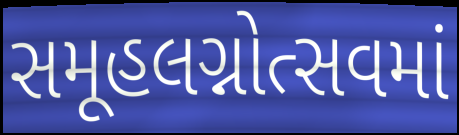
સમૂહલગ્નોત્સવમાં